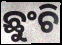
ଛୁଂଚି